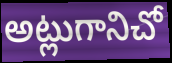
అట్లుగానిచో